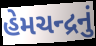
હેમચન્દ્રનું